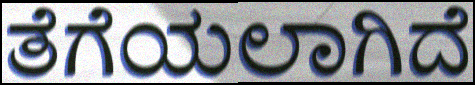
ತೆಗೆಯಲಾಗಿದೆ